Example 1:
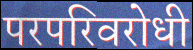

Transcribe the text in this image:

परपरिवरोधी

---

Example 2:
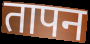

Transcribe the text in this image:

तापन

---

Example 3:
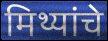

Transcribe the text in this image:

मिथ्यांचे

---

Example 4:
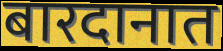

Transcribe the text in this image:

बारदानात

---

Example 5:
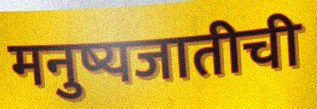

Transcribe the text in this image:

मनुष्यजातीची